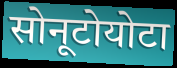
सोनूटोयोटा